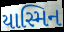
યાસ્મિન